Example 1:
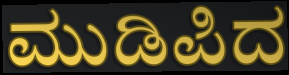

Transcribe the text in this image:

ಮುಡಿಪಿದ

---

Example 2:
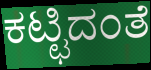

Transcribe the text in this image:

ಕಟ್ಟಿದಂತೆ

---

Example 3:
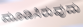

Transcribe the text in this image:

ಮೂಡಿಸಿರುವುದು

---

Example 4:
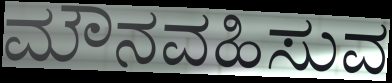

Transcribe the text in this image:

ಮೌನವಹಿಸುವ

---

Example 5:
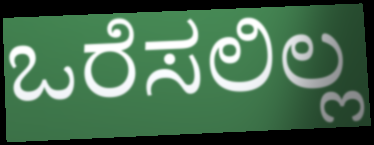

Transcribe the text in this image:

ಒರೆಸಲಿಲ್ಲ